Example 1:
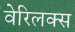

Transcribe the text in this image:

वेरिलक्स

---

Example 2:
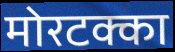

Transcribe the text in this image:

मोरटक्का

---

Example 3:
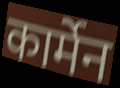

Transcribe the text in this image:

कार्मेन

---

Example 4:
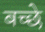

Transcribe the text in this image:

बच्छे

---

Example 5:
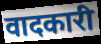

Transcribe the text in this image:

वादकारी